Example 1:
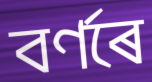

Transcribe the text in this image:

বৰ্ণৰে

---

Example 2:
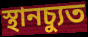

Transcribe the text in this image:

স্থানচ্যুত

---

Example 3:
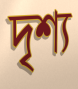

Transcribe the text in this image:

দৃশ্য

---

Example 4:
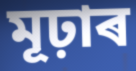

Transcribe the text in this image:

মূঢ়াৰ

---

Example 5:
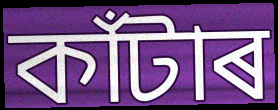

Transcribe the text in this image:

কাঁটাৰ